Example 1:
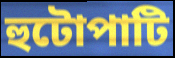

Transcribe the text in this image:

হুটোপাটি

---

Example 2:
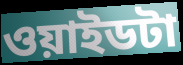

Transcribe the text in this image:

ওয়াইডটা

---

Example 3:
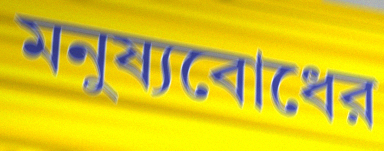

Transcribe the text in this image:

মনুষ্যবোধের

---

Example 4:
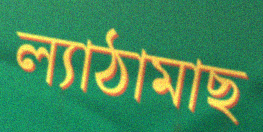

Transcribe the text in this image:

ল্যাঠামাছ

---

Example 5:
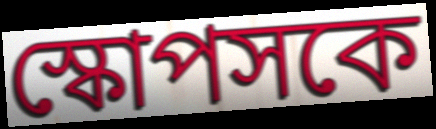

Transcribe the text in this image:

স্কোপসকে